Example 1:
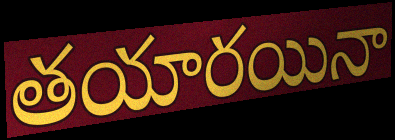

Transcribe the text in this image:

తయారయినా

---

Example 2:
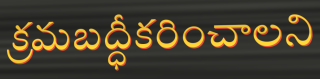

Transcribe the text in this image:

క్రమబద్ధీకరించాలని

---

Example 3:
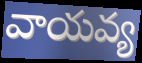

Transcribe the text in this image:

వాయవ్య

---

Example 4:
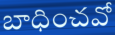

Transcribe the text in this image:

బాధించవో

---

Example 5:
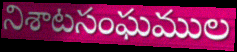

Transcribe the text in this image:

నిశాటసంఘముల